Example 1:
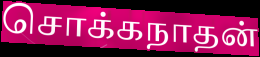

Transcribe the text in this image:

சொக்கநாதன்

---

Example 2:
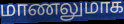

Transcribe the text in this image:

மாணலுமாக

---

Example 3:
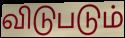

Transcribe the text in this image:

விடுபடும்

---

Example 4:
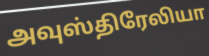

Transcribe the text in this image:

அவுஸ்திரேலியா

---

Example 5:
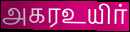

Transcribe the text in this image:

அகரஉயிர்